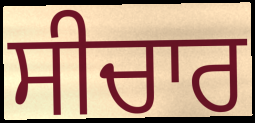
ਸੀਚਾਰ